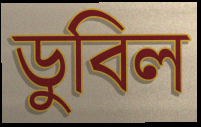
ডুবিল